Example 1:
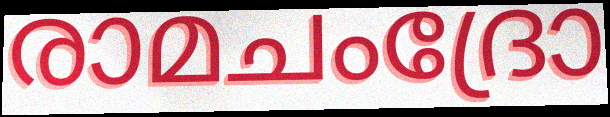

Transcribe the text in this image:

രാമചംദ്രോ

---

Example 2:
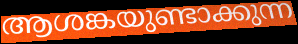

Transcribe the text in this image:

ആശങ്കയുണ്ടാക്കുന്ന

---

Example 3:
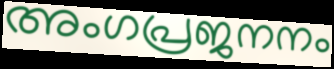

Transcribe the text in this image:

അംഗപ്രജനനം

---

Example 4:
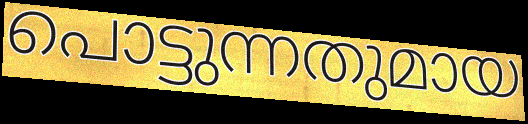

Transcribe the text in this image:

പൊട്ടുന്നതുമായ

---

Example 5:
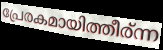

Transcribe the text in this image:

പ്രേരകമായിത്തീര്ന്ന